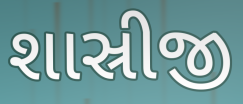
શાસ્રીજી